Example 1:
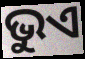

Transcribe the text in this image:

ଭୁଏ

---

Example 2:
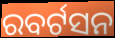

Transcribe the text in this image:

ରବର୍ଟସନ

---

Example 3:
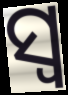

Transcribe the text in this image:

ସ୍ୱ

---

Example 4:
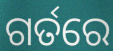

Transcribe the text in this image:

ଗର୍ତରେ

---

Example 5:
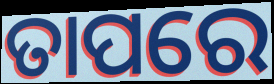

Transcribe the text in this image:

ତାପରେ